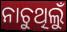
ନାଚୁଥିଲୁଁ